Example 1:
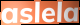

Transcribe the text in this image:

aslela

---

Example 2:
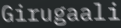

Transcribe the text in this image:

Girugaali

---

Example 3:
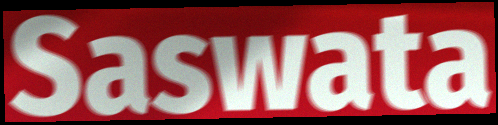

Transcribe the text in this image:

Saswata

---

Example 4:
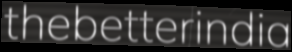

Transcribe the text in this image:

thebetterindia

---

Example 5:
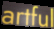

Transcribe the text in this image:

artful